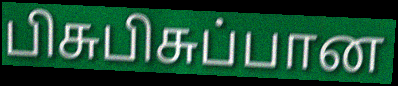
பிசுபிசுப்பான